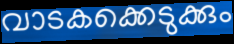
വാടകക്കെടുക്കും